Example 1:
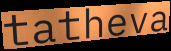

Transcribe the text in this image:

tatheva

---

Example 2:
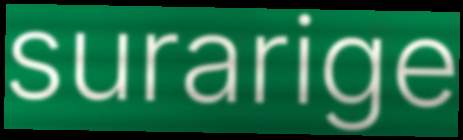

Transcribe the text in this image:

surarige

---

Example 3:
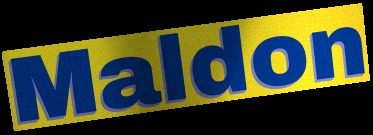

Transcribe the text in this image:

Maldon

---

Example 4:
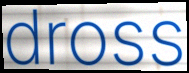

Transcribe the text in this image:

dross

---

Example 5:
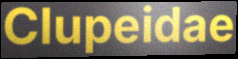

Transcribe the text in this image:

Clupeidae